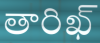
తారిఖ్